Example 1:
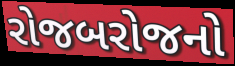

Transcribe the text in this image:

રોજબરોજનો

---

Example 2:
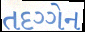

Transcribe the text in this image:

તદગ્ગેન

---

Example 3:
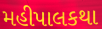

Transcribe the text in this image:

મહીપાલકથા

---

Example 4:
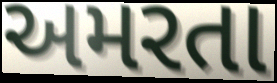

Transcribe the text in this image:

અમરતા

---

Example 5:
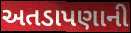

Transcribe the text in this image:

અતડાપણાની